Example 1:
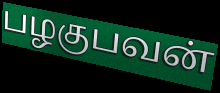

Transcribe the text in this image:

பழகுபவன்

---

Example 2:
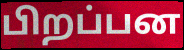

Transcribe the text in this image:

பிறப்பன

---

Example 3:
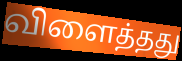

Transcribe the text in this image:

விளைத்தது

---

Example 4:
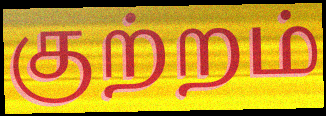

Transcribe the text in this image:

குற்றம்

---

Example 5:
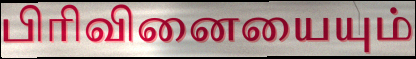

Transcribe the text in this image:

பிரிவினையையும்